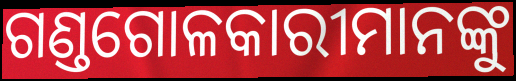
ଗଣ୍ଡଗୋଳକାରୀମାନଙ୍କୁ